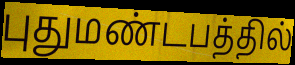
புதுமண்டபத்தில்